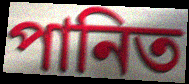
পানিত